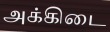
அக்கிடை